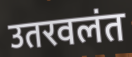
उतरवलंत